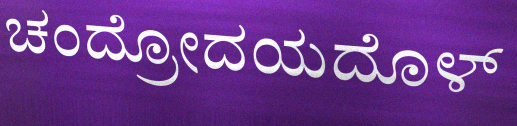
ಚಂದ್ರೋದಯದೊಳ್